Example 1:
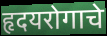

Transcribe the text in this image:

हृदयरोगाचे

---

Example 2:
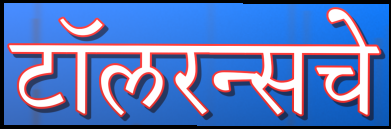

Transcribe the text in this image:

टॉलरन्सचे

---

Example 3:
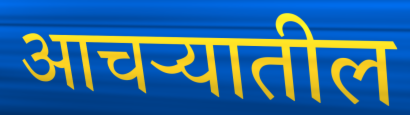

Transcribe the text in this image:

आचऱ्यातील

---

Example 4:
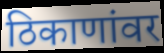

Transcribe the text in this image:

ठिकाणांवर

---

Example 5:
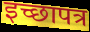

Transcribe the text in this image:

इच्छापत्र